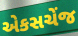
એકસચેંજ